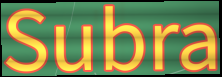
Subra